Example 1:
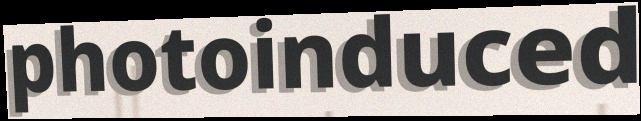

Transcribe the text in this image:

photoinduced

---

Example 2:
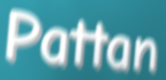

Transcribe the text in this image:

Pattan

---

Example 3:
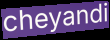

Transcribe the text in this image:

cheyandi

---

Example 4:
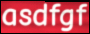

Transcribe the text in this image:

asdfgf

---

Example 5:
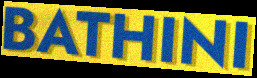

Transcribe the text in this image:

BATHINI